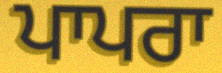
ਪਾਪਰਾ